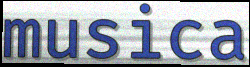
musica